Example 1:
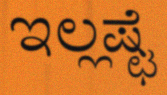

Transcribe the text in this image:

ಇಲ್ಲಷ್ಟೆ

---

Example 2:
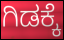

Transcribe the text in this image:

ಗಿಡಕ್ಕೆ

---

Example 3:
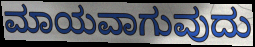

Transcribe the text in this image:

ಮಾಯವಾಗುವುದು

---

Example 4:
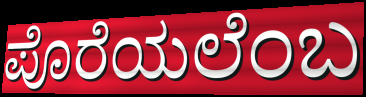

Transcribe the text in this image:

ಪೊರೆಯಲೆಂಬ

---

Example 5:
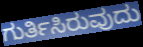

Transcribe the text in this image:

ಗುರ್ತಿಸಿರುವುದು